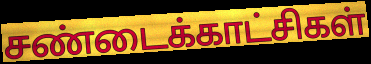
சண்டைக்காட்சிகள்